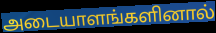
அடையாளங்களினால்